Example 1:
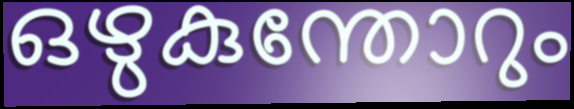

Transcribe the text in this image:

ഒഴുകുന്തോറും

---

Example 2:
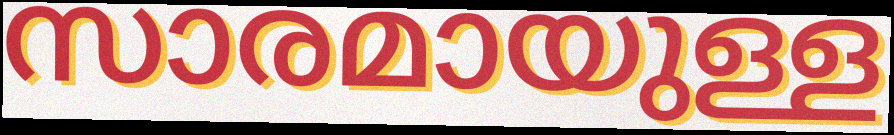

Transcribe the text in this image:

സാരമായുള്ള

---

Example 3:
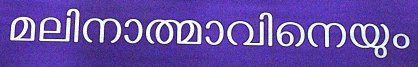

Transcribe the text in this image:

മലിനാത്മാവിനെയും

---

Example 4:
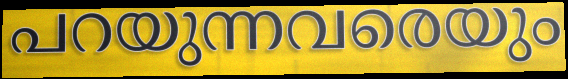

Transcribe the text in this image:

പറയുന്നവരെയും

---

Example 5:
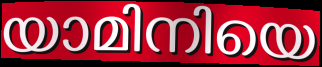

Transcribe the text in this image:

യാമിനിയെ